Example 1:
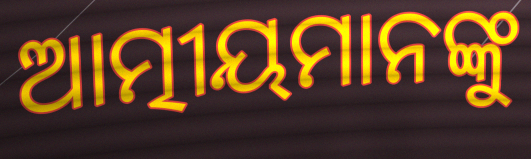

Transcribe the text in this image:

ଆତ୍ମୀୟମାନଙ୍କୁ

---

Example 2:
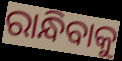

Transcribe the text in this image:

ରାନ୍ଧିବାକୁ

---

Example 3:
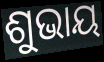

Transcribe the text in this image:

ଶୁଭାୟ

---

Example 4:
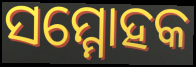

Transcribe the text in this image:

ସମ୍ମୋହକ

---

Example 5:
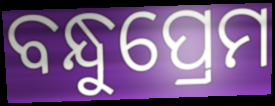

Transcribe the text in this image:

ବନ୍ଧୁପ୍ରେମ